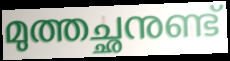
മുത്തച്ഛനുണ്ട്